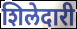
शिलेदारी